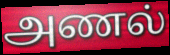
அணல்